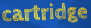
cartridge